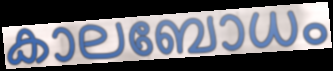
കാലബോധം